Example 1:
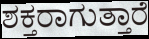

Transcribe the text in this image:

ಶಕ್ತರಾಗುತ್ತಾರೆ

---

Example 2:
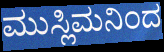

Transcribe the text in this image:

ಮುಸ್ಲಿಮನಿಂದ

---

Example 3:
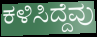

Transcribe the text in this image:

ಕಳಿಸಿದ್ದೆವು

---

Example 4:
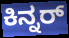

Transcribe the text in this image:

ಕಿನ್ನರ್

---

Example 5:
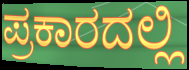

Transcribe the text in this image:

ಪ್ರಕಾರದಲ್ಲಿ